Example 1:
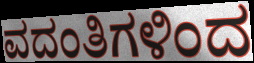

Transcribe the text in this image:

ವದಂತಿಗಳಿಂದ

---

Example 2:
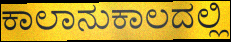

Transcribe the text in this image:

ಕಾಲಾನುಕಾಲದಲ್ಲಿ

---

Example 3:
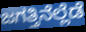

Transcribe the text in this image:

ಜಗತ್ತಿನೆಲ್ಲೆಡೆ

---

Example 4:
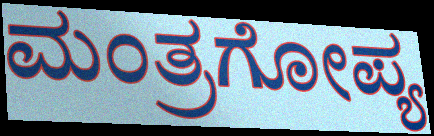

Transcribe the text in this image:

ಮಂತ್ರಗೋಪ್ಯ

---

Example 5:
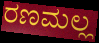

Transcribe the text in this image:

ರಣಮಲ್ಲ